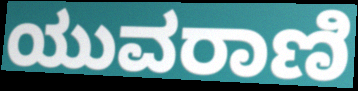
ಯುವರಾಣಿ